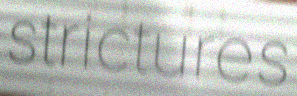
strictures